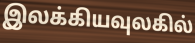
இலக்கியவுலகில்